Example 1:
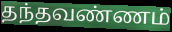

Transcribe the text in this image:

தந்தவண்ணம்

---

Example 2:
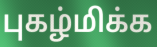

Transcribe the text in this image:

புகழ்மிக்க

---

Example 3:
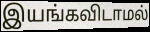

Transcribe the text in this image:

இயங்கவிடாமல்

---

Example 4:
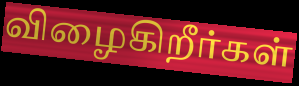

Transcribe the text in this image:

விழைகிறீர்கள்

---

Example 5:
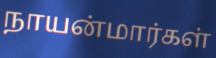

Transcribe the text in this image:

நாயன்மார்கள்